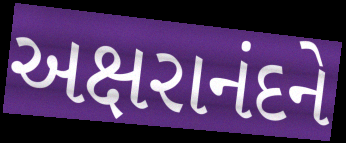
અક્ષરાનંદને